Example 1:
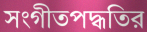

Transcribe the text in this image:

সংগীতপদ্ধতির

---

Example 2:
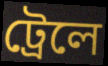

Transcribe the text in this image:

ট্রেলে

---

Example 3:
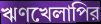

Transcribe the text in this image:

ঋণখেলাপির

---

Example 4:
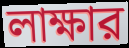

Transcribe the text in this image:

লাক্ষার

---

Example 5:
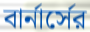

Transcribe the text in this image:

বার্নার্সের